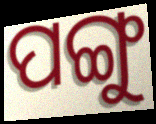
ପଙ୍ଗୁ